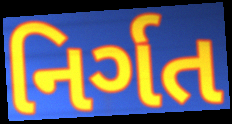
નિર્ગત